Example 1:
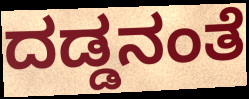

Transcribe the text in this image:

ದಡ್ಡನಂತೆ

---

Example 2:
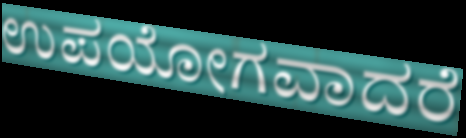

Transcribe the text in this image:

ಉಪಯೋಗವಾದರೆ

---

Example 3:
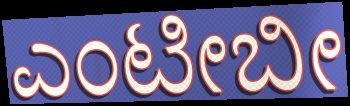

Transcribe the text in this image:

ಎಂಟೀಬೀ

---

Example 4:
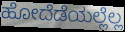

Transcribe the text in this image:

ಹೋದೆಡೆಯಲ್ಲೆಲ್ಲ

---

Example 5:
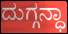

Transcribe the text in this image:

ದುಗ್ಗನ್ಧಾ